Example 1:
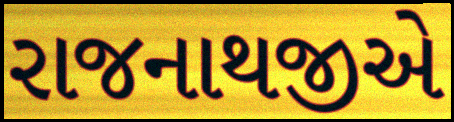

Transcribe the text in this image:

રાજનાથજીએ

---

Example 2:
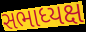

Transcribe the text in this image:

સભાધ્યક્ષ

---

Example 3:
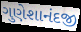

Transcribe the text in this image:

ગુણેશાનંદજી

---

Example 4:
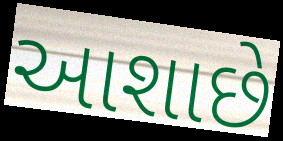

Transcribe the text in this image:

આશાછે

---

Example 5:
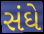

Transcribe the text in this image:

સંઘે